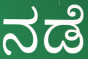
ನಡೆ